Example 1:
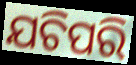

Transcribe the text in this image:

ଯଚିପରି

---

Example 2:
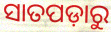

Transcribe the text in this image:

ସାତପଡ଼ାରୁ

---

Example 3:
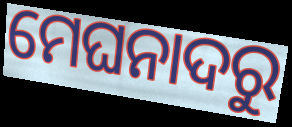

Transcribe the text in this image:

ମେଘନାଦରୁ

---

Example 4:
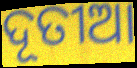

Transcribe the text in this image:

ଦୂତୀଆ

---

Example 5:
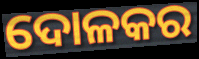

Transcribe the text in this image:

ଦୋଳକର